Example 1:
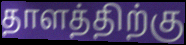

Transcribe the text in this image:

தாளத்திற்கு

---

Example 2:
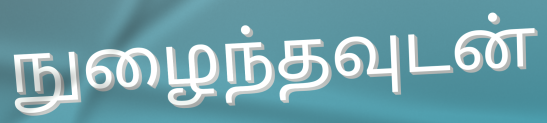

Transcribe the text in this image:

நுழைந்தவுடன்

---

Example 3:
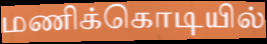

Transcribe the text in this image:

மணிக்கொடியில்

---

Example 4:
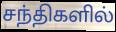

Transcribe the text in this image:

சந்திகளில்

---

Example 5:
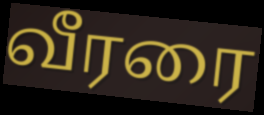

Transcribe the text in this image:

வீரரை